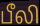
பீலி